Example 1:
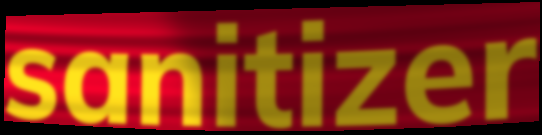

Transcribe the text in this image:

sanitizer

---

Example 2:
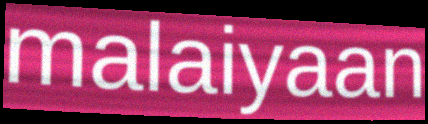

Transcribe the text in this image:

malaiyaan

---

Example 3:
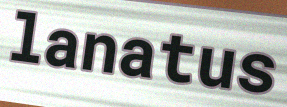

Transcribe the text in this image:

lanatus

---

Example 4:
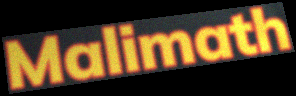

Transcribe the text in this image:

Malimath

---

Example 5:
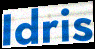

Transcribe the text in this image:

Idris